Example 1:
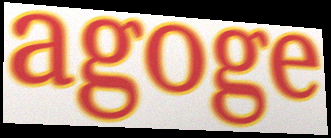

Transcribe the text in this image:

agoge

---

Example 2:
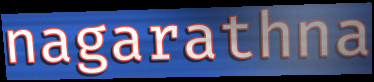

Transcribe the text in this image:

nagarathna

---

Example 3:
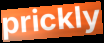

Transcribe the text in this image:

prickly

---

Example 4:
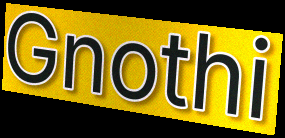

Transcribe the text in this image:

Gnothi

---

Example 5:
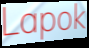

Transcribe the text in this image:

Lapok